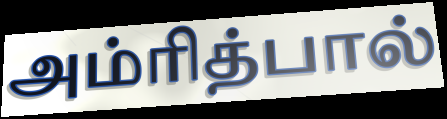
அம்ரித்பால்